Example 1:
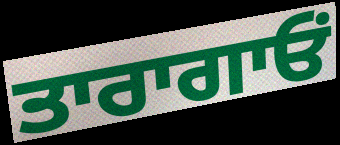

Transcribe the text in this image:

ਤਾਰਾਗਾਓਂ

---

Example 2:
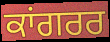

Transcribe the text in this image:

ਕਾਂਗਰਰ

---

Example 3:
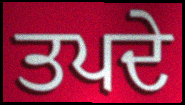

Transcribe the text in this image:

ਤਪਦੇ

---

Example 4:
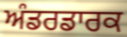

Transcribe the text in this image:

ਅੰਡਰਡਾਰਕ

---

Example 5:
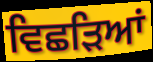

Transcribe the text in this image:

ਵਿਛੜਿਆਂ